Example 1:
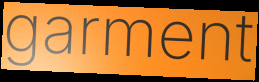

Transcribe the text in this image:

garment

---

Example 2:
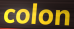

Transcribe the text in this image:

colon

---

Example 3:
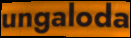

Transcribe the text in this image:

ungaloda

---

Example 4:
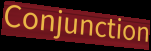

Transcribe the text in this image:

Conjunction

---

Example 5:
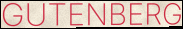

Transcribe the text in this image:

GUTENBERG